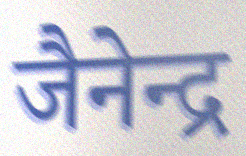
जैनेन्द्र